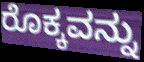
ರೊಕ್ಕವನ್ನು